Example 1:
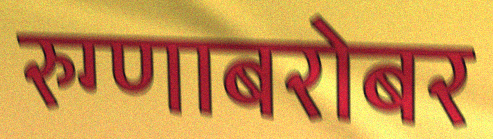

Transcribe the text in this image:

रुग्णाबरोबर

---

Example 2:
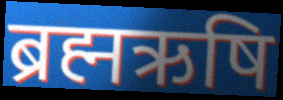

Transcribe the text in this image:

ब्रह्मऋषि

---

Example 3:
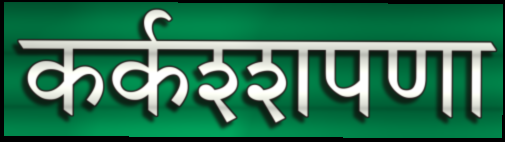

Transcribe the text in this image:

कर्कश्शपणा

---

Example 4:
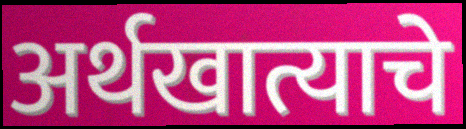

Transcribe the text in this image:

अर्थखात्याचे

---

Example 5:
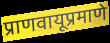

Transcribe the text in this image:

प्राणवायूप्रमाणे